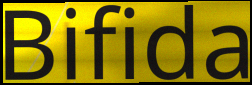
Bifida